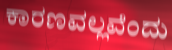
ಕಾರಣವಲ್ಲವೆಂದು